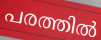
പരത്തിൽ